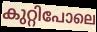
കുറ്റിപോലെ